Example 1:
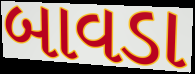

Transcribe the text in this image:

બાવડા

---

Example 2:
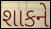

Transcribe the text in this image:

શાકને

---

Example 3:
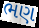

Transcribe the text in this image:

ભણ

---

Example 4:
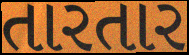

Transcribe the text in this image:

તારતાર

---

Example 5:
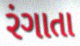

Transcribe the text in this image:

રંગાતા